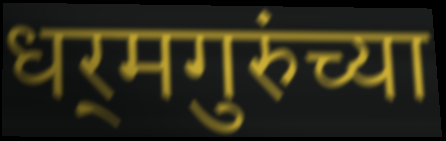
धर्मगुरुंच्या